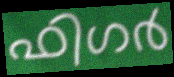
ഫിഗർ